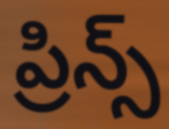
ప్రిన్స్